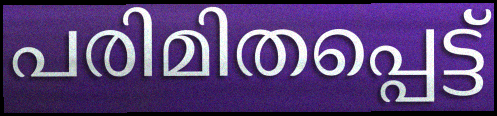
പരിമിതപ്പെട്ട്